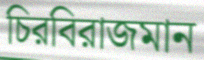
চিরবিরাজমান